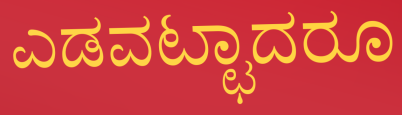
ಎಡವಟ್ಟಾದರೂ